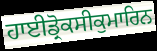
ਹਾਈਡ੍ਰੋਕਸੀਕੁਮਾਰਿਨ